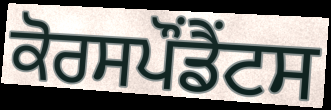
ਕੋਰਸਪੌਂਡੈਂਟਸ